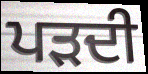
ਪੜਦੀ